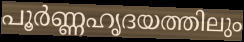
പൂർണ്ണഹൃദയത്തിലും